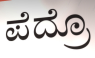
ಪೆದ್ರೊ